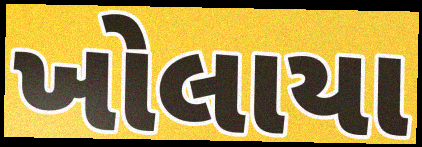
ખોલાયા